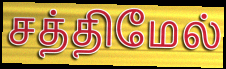
சத்திமேல்